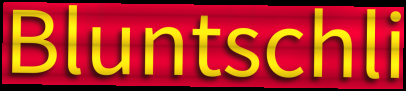
Bluntschli